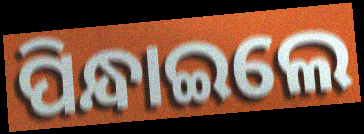
ପିନ୍ଧାଇଲେ